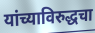
यांच्याविरुद्धचा